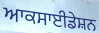
ਆਕਸਾਈਡੇਸ਼ਨ